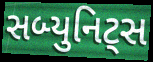
સબ્યુનિટ્સ